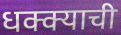
धक्क्याची